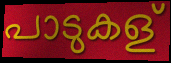
പാടുകള്